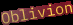
Oblivion